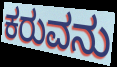
ಕರುವನು